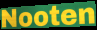
Nooten